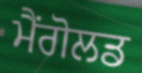
ਮੈਂਗੋਲਡ